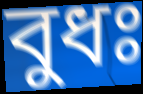
বুধঃ